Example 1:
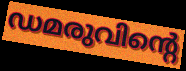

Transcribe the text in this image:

ഡമരുവിന്റെ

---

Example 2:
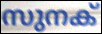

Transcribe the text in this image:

സുനക്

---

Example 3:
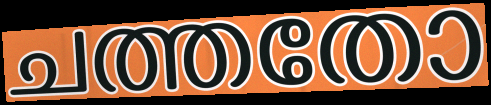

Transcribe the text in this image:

ചത്തതോ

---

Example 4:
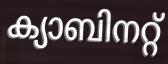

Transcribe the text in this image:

ക്യാബിനറ്റ്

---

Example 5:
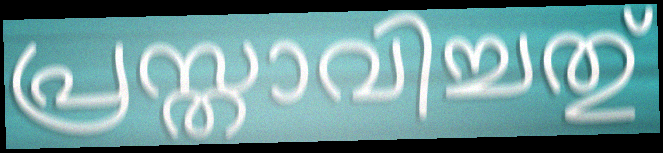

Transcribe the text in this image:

പ്രസ്താവിച്ചതു്